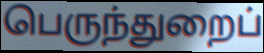
பெருந்துறைப்